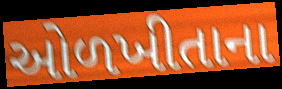
ઓળખીતાના